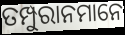
ତମ୍ପୁରାନମାନେ